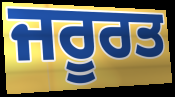
ਜਰੂਰਤ